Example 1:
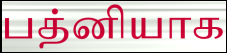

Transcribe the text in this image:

பத்னியாக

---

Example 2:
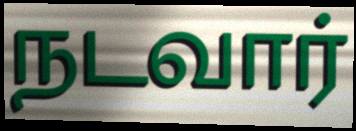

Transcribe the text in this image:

நடவார்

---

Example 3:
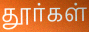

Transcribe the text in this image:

தூர்கள்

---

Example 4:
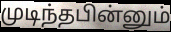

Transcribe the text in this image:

முடிந்தபின்னும்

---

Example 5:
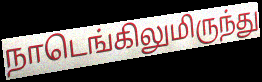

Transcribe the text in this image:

நாடெங்கிலுமிருந்து